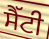
ਸੈੱਟੀ